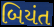
બિયંત